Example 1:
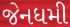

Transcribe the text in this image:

જેનધમી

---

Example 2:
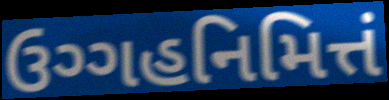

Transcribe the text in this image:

ઉગ્ગહનિમિત્તં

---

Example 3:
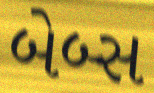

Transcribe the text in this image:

બેબ્સ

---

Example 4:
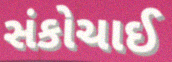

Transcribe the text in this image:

સંકોચાઈ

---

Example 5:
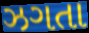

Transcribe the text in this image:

ઝગતા